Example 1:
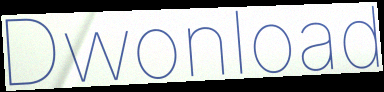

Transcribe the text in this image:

Dwonload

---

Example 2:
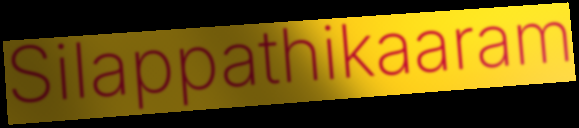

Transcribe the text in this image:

Silappathikaaram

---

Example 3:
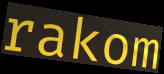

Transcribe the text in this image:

rakom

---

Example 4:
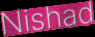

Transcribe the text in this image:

Nishad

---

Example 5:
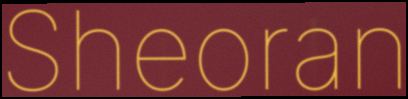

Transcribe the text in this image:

Sheoran